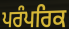
ਪਰੰਪਰਿਕ